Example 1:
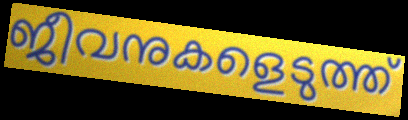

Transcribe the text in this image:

ജീവനുകളെടുത്ത്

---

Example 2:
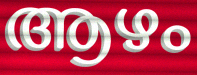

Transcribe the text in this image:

ആഴം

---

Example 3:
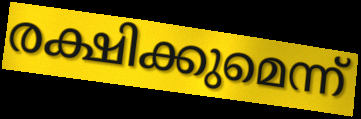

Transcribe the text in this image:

രക്ഷിക്കുമെന്ന്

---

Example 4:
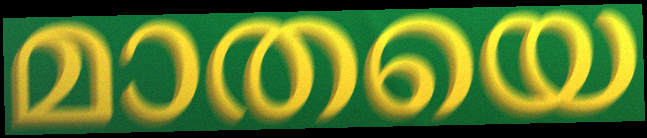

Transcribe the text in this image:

മാതയെ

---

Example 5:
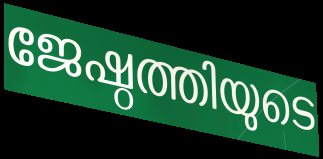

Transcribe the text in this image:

ജേഷ്ഠത്തിയുടെ